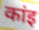
कांइ